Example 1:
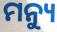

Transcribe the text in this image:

ମନ୍ୟୁ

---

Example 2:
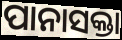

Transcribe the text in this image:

ପାନାସକ୍ତା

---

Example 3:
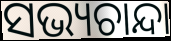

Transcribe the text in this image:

ସଭ୍ୟଚାନ୍ଦା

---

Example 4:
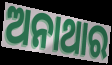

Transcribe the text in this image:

ଅନାଥାର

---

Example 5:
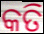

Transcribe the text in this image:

କତି